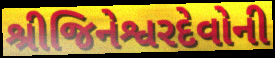
શ્રીજિનેશ્વરદેવોની